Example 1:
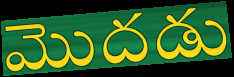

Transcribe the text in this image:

మొదడు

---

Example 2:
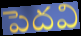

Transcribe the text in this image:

పెదవి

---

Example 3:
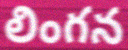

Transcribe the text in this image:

లింగన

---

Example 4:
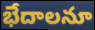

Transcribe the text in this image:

భేదాలనూ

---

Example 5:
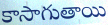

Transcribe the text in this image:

కాసాగుతాయి